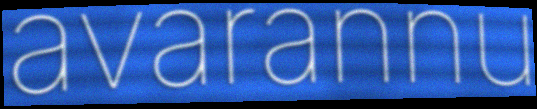
avarannu